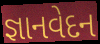
જ્ઞાનવેદન